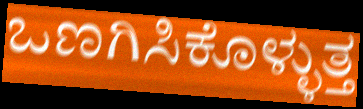
ಒಣಗಿಸಿಕೊಳ್ಳುತ್ತ